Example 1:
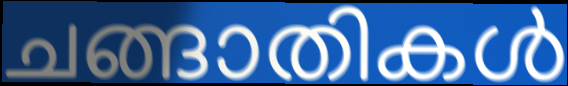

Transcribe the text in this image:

ചങ്ങാതികൾ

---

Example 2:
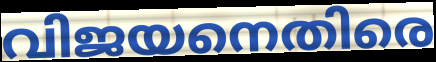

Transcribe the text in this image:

വിജയനെതിരെ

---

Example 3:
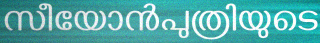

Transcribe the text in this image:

സീയോൻപുത്രിയുടെ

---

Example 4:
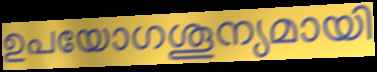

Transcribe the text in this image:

ഉപയോഗശൂന്യമായി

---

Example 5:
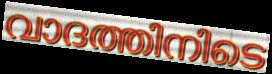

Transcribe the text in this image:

വാദത്തിനിടെ